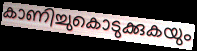
കാണിച്ചുകൊടുക്കുകയും